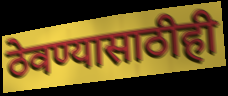
ठेवण्यासाठीही